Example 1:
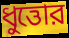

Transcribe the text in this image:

ধুত্তোর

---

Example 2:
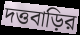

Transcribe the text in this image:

দত্তবাড়ির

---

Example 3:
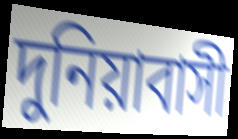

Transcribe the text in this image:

দুনিয়াবাসী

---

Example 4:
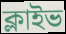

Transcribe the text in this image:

ক্লাইভ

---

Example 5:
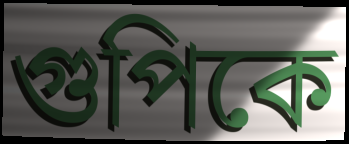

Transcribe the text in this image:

গুপিকে